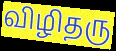
விழிதரு